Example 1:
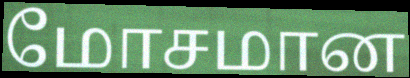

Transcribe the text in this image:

மோசமான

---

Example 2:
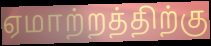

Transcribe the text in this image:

ஏமாற்றத்திற்கு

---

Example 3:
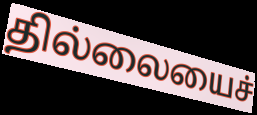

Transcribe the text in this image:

தில்லையைச்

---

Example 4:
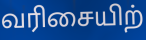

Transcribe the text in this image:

வரிசையிற்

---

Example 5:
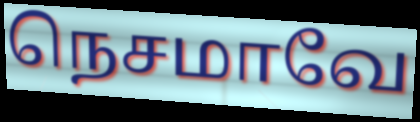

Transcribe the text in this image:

நெசமாவே